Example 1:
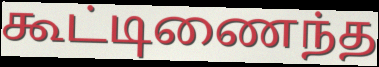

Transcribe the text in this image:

கூட்டிணைந்த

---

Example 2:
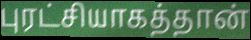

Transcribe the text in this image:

புரட்சியாகத்தான்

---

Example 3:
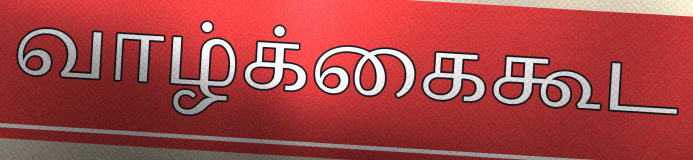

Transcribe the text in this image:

வாழ்க்கைகூட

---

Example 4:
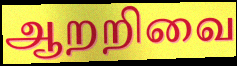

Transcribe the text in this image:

ஆறறிவை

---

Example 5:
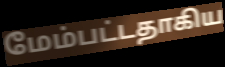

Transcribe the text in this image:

மேம்பட்டதாகிய